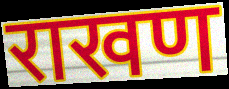
राखण